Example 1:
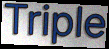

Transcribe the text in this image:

Triple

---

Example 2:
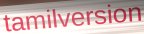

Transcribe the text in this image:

tamilversion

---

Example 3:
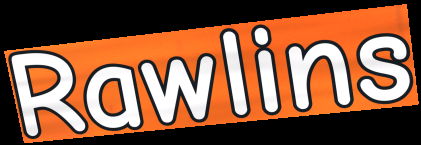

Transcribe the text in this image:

Rawlins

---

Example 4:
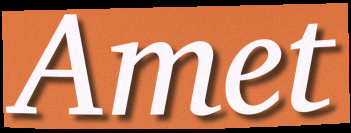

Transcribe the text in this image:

Amet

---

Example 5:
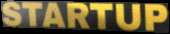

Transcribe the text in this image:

STARTUP